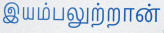
இயம்பலுற்றான்